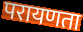
परायणता